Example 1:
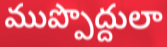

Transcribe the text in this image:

ముప్పొద్దులా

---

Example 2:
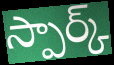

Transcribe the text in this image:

స్పార్క్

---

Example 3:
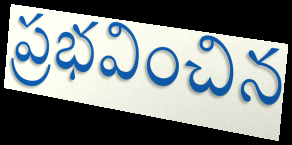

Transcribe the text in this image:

ప్రభవించిన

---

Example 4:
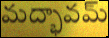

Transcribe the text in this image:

మద్భావమ్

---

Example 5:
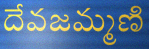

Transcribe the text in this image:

దేవజమ్మణి